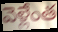
వెళ్లేంత